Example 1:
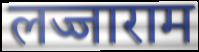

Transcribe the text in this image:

लज्जाराम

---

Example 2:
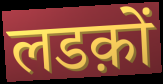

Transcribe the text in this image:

लडक़ों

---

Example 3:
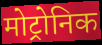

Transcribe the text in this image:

मोट्रोनिक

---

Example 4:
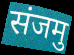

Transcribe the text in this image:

संजमु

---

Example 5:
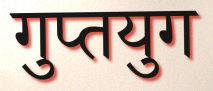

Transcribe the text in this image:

गुप्तयुग